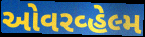
ઓવરવ્હેલ્મ